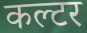
कल्टर